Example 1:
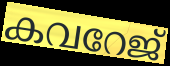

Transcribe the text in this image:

കവറേജ്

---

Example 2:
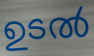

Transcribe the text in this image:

ഉടൽ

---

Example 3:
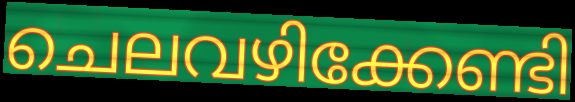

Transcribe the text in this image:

ചെലവഴിക്കേണ്ടി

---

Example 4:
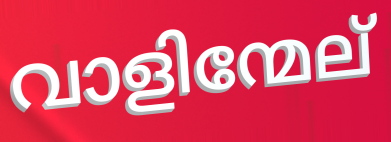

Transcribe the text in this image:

വാളിന്മേല്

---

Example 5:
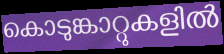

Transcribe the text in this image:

കൊടുങ്കാറ്റുകളിൽ